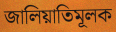
জালিয়াতিমূলক